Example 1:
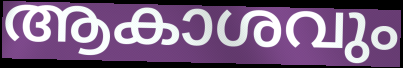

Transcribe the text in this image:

ആകാശവും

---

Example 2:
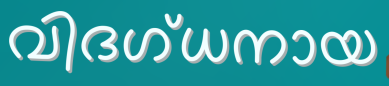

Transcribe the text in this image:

വിദഗ്ധനായ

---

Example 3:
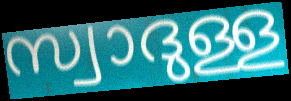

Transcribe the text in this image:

സ്വാദുള്ള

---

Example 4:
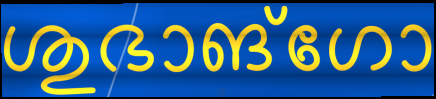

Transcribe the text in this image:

ശുഭാങ്ഗോ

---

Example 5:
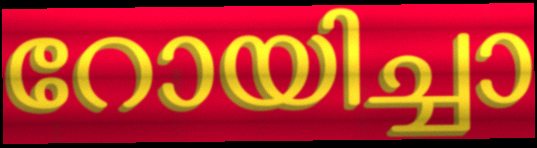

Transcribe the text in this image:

റോയിച്ചാ